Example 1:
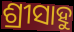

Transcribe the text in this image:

ଶ୍ରୀସାହୁ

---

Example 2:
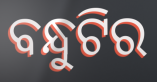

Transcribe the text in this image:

ବନ୍ଧୁଟିର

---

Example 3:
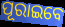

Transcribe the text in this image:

ପୂରାଇବେ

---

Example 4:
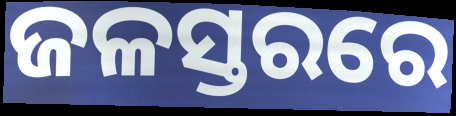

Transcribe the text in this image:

ଜଳସ୍ତରରେ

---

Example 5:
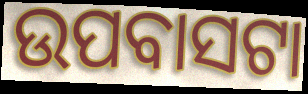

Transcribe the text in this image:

ଉପବାସଟା